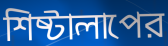
শিষ্টালাপের